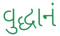
વુદ્ધાનં